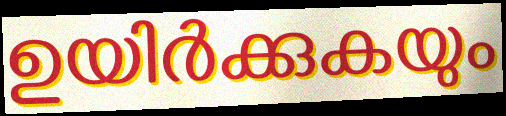
ഉയിർക്കുകയും